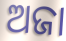
ଅଜା